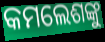
କମଲେଶଙ୍କୁ